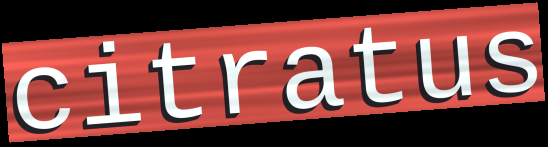
citratus